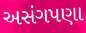
અસંગપણા